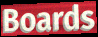
Boards